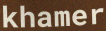
khamer